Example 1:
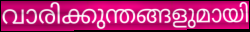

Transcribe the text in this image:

വാരിക്കുന്തങ്ങളുമായി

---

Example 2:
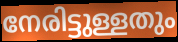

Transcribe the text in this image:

നേരിട്ടുള്ളതും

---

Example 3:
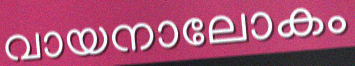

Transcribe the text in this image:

വായനാലോകം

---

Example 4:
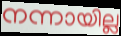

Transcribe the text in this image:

നന്നായില്ല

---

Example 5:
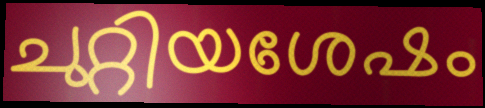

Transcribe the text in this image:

ചുറ്റിയശേഷം